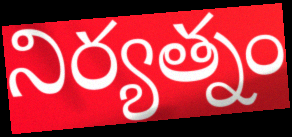
నిర్యత్నం